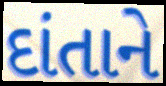
દાંતાને